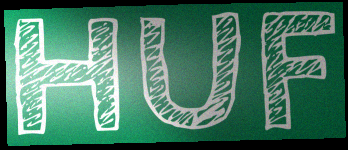
HUF